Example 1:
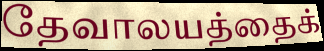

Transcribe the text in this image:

தேவாலயத்தைக்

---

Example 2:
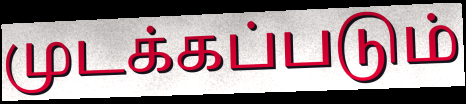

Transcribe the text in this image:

முடக்கப்படும்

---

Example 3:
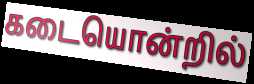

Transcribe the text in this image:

கடையொன்றில்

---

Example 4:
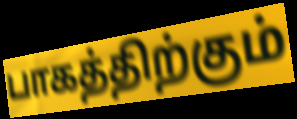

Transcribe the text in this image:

பாகத்திற்கும்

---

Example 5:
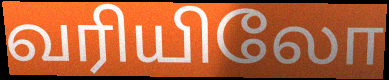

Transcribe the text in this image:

வரியிலோ